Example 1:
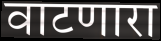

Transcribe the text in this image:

वाटणारा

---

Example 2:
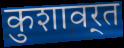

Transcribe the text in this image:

कुशावर्त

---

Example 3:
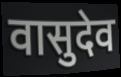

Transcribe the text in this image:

वासुदेव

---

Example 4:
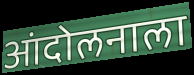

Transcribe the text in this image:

आंदोलनाला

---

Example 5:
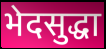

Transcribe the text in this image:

भेदसुद्धा